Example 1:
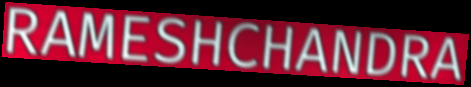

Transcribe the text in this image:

RAMESHCHANDRA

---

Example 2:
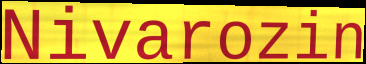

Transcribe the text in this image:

Nivarozin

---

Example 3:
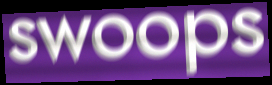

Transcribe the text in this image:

swoops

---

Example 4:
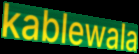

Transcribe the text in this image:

kablewala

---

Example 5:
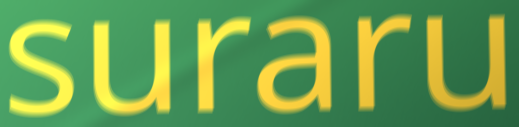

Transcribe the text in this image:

suraru